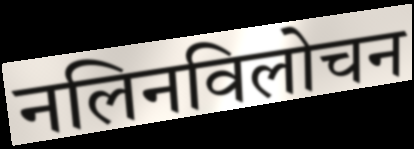
नलिनविलोचन